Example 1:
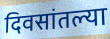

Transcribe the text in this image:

दिवसांतल्या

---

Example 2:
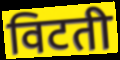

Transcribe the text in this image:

विटती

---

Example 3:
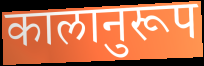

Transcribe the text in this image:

कालानुरूप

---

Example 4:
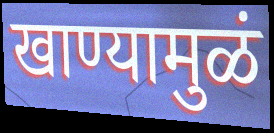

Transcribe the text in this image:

खाण्यामुळं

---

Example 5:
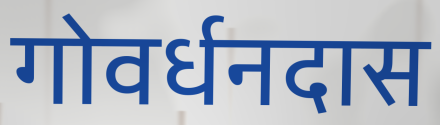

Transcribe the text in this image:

गोवर्धनदास